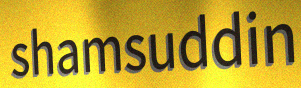
shamsuddin